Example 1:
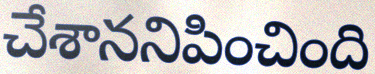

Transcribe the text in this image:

చేశాననిపించింది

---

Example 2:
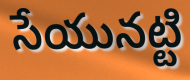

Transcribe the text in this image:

సేయునట్టి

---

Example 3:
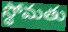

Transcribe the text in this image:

స్థోమతు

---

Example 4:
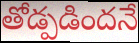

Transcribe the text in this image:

తోడ్పడిందనే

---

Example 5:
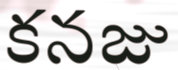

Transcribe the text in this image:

కనజు